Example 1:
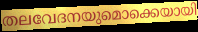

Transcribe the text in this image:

തലവേദനയുമൊക്കെയായി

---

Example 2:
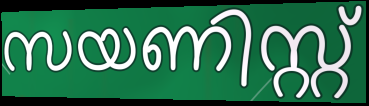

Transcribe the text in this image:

സയണിസ്റ്റ്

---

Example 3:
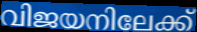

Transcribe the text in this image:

വിജയനിലേക്ക്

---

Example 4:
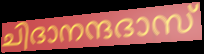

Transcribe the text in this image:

ചിദാനന്ദദാസ്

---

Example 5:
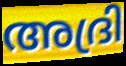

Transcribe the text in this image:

അദ്രി